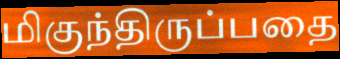
மிகுந்திருப்பதை